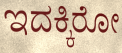
ಇದಕ್ಕಿರೋ